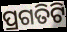
ପ୍ରଗତିଟି